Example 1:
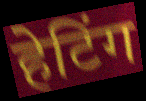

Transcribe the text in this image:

हेटिंग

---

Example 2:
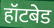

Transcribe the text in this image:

हॉटबेड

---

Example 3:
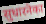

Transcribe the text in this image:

सुधारनेका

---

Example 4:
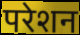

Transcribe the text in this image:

परेशन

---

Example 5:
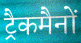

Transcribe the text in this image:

ट्रैकमैनों